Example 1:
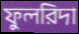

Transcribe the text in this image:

ফুলরিদা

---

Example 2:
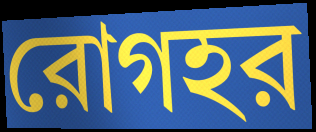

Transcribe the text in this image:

রোগহর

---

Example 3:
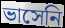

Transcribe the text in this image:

ভাসেনি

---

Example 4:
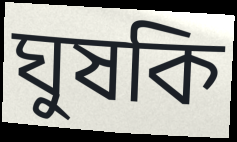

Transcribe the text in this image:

ঘুষকি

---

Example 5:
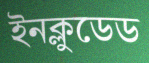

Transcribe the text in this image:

ইনক্লুডেড